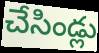
చేసిండ్లు